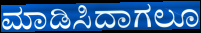
ಮಾಡಿಸಿದಾಗಲೂ